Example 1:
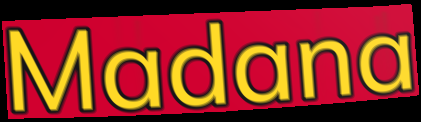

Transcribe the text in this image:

Madana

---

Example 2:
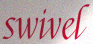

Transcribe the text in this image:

swivel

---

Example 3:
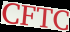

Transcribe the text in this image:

CFTC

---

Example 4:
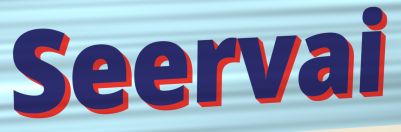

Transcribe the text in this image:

Seervai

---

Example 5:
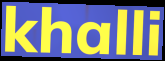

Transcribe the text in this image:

khalli